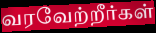
வரவேற்றீர்கள்